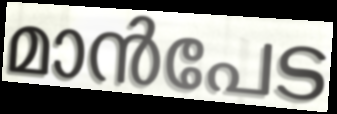
മാൻപേട